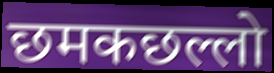
छमकछल्लो